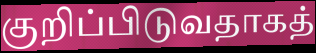
குறிப்பிடுவதாகத்